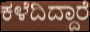
ಕಳೆದಿದ್ದಾರೆ